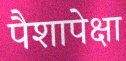
पैशापेक्षा